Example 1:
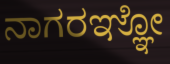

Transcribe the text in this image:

ನಾಗರಞ್ಞೋ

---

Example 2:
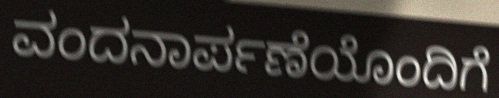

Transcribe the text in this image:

ವಂದನಾರ್ಪಣೆಯೊಂದಿಗೆ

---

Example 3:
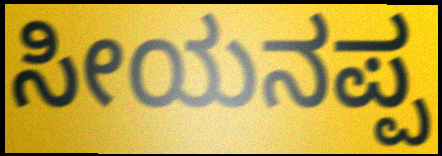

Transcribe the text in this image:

ಸೀಯನಪ್ಪ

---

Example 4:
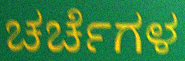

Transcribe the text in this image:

ಚರ್ಚೆಗಳ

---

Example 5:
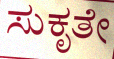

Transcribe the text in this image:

ಸುಕೃತೇ